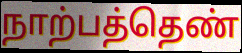
நாற்பத்தெண்